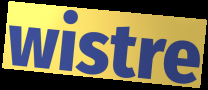
wistre